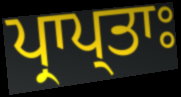
ਪ੍ਰਾਪ੍ਤਾਃ